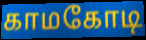
காமகோடி